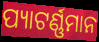
ପ୍ୟାଟର୍ଣ୍ଣମାନ